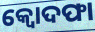
କ୍ବୋଦଫା